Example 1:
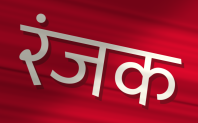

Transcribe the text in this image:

रंजक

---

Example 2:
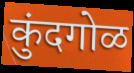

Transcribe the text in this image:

कुंदगोळ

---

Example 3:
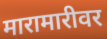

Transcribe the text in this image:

मारामारीवर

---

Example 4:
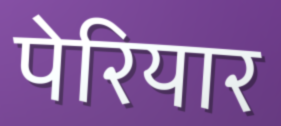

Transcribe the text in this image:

पेरियार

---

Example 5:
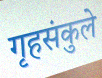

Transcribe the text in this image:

गृहसंकुले